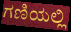
ಗಣಿಯಲ್ಲಿ